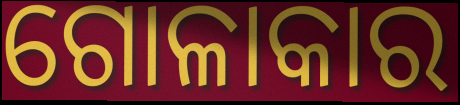
ଗୋଳାକାର